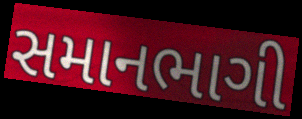
સમાનભાગી